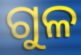
ଗୁଳ